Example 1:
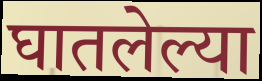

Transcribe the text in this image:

घातलेल्या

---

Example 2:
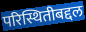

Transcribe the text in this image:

परिस्थितीबद्दल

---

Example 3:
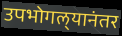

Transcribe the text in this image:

उपभोगल्यानंतर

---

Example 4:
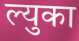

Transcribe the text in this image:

ल्युका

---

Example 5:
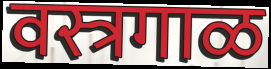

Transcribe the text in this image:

वस्त्रगाळ